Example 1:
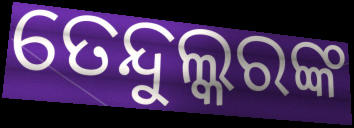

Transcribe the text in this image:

ତେନ୍ଦୁଲ୍କରଙ୍କ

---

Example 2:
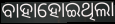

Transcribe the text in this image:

ବାହାହୋଇଥିଲା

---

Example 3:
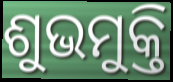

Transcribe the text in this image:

ଶୁଭମୁକ୍ତି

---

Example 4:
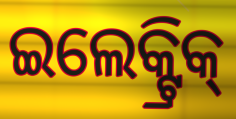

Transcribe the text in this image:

ଇଲେକ୍ଟ୍ରିକ୍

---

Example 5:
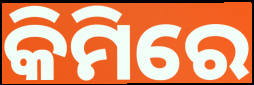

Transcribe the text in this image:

କିମିରେ